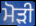
ਮੋੜੀ